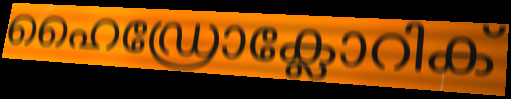
ഹൈഡ്രോക്ലോറിക്